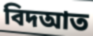
বিদআত